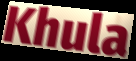
Khula